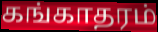
கங்காதரம்